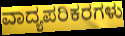
ವಾದ್ಯಪರಿಕರಗಳು